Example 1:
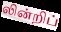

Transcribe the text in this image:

லின்றிப்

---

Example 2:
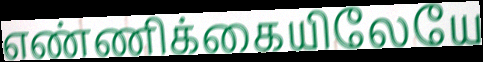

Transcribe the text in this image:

எண்ணிக்கையிலேயே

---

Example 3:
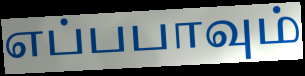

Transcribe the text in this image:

எப்பபாவும்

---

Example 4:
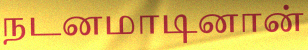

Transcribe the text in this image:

நடனமாடினான்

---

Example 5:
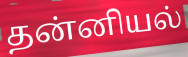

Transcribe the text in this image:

தன்னியல்